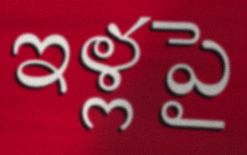
ఇళ్లపై